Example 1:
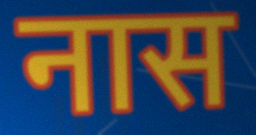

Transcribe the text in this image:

नास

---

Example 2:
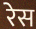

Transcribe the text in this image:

रेस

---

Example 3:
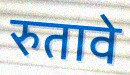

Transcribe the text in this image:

रुतावे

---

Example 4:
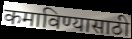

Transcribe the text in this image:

कमाविण्यासाठी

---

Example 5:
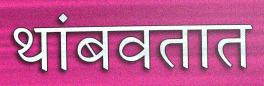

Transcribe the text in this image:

थांबवतात